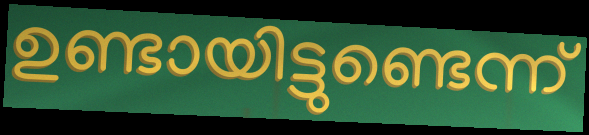
ഉണ്ടായിട്ടുണ്ടെന്ന്